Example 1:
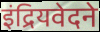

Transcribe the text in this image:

इंद्रियवेदने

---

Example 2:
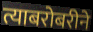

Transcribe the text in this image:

त्याबरोबरीने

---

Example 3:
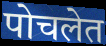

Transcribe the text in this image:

पोचलेत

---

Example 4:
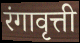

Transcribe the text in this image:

रंगावृत्ती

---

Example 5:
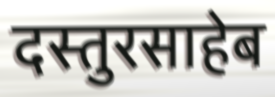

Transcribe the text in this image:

दस्तुरसाहेब